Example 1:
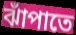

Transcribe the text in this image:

ঝাঁপাতে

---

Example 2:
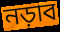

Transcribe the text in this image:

নড়াব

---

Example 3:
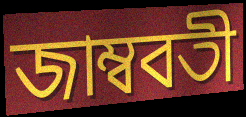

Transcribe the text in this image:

জাম্ববতী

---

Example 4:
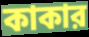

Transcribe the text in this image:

কাকার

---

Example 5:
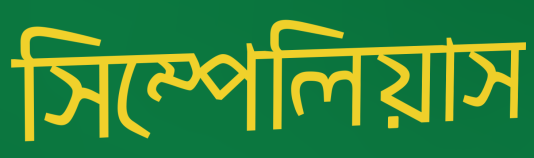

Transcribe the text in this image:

সিম্পেলিয়াস